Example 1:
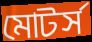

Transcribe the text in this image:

মোটর্স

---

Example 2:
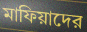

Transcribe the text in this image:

মাফিয়াদের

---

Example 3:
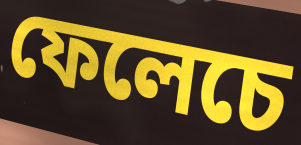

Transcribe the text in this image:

ফেলেচে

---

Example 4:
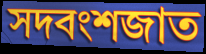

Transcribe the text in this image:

সদবংশজাত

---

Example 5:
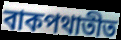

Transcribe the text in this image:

বাকপথাতীত